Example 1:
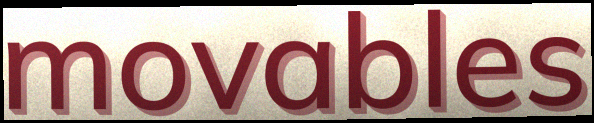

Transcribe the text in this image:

movables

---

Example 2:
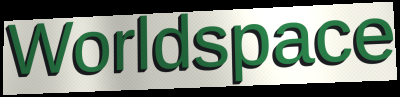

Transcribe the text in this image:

Worldspace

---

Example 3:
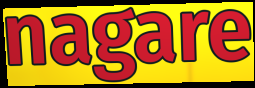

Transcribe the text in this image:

nagare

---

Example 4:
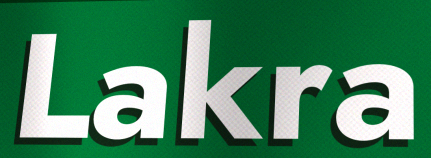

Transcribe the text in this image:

Lakra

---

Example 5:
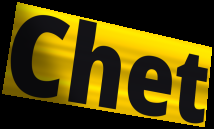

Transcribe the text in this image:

Chet